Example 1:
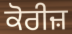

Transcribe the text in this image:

ਕੋਰੀਜ਼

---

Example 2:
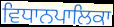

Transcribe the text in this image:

ਵਿਧਾਨਪਾਲਿਕਾ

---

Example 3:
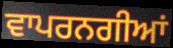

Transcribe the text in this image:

ਵਾਪਰਨਗੀਆਂ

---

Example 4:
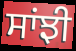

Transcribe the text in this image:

ਸਾਂਝੀ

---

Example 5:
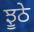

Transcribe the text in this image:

ਝੂਠੇ